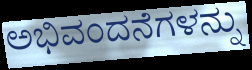
ಅಭಿವಂದನೆಗಳನ್ನು